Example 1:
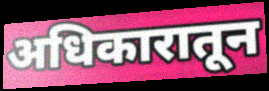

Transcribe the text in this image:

अधिकारातून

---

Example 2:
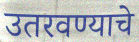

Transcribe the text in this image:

उतरवण्याचे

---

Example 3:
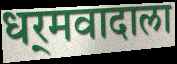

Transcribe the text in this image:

धर्मवादाला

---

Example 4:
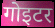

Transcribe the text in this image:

गोइटर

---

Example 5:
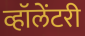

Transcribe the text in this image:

व्हॉलेंटरी